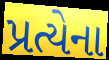
પ્રત્યેના